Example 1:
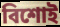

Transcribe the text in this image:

বিশোই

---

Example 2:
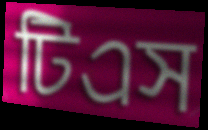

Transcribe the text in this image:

টিএস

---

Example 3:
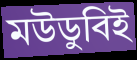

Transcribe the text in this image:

মউডুবিই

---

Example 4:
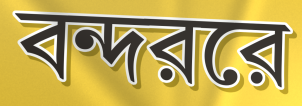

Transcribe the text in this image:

বন্দররে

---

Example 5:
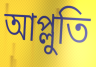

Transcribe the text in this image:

আপ্লুতি